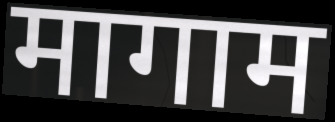
मागाम